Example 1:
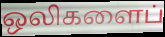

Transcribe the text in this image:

ஒலிகளைப்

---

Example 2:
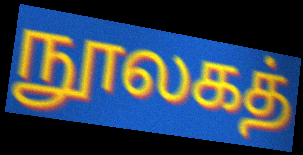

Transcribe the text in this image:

நூலகத்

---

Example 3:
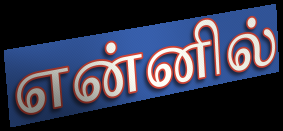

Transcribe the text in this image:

என்னில்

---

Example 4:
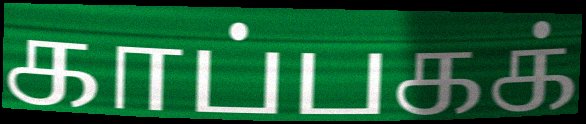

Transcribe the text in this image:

காப்பகக்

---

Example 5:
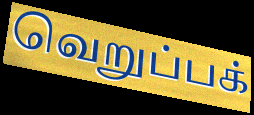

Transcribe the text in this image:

வெறுப்பக்